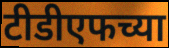
टीडीएफच्या